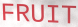
FRUIT